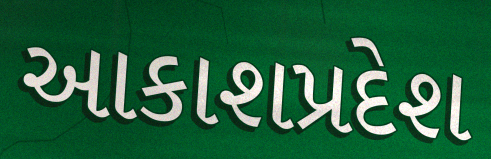
આકાશપ્રદેશ